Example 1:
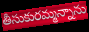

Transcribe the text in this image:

తీసుకురమ్మన్నాను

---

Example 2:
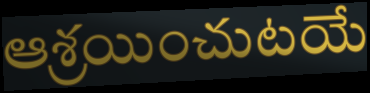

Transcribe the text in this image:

ఆశ్రయించుటయే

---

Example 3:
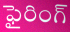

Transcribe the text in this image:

ఫైరింగ్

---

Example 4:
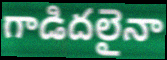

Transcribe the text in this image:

గాడిదలైనా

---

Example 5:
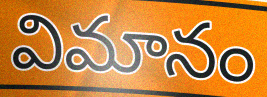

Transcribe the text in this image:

విమానం